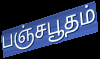
பஞ்சபூதம்